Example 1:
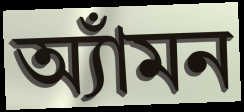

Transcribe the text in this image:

অ্যাঁমন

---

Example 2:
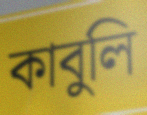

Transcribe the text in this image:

কাবুলি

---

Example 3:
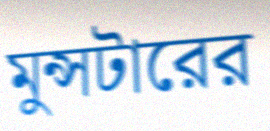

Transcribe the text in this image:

মুন্সটারের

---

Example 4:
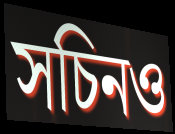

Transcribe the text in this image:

সচিনও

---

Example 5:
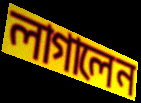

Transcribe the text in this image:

লাগালেন